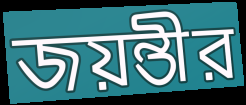
জয়ন্তীর